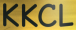
KKCL